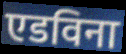
एडविना